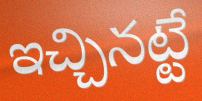
ఇచ్చినట్టే